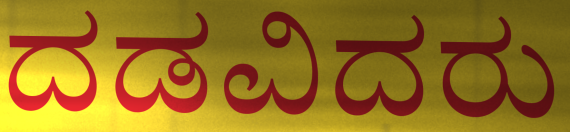
ದಡವಿದರು